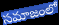
సమాజంలో